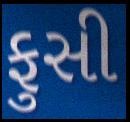
ફુસી